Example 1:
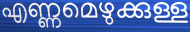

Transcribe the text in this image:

എണ്ണമെഴുക്കുള്ള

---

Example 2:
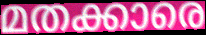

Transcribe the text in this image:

മതക്കാരെ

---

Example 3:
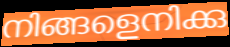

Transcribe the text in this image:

നിങ്ങളെനിക്കു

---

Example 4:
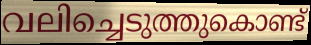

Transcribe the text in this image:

വലിച്ചെടുത്തുകൊണ്ട്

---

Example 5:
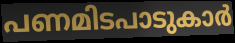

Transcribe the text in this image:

പണമിടപാടുകാർ